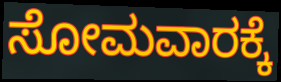
ಸೋಮವಾರಕ್ಕೆ